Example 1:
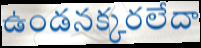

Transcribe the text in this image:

ఉండనక్కరలేదా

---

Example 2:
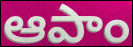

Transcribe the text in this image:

ఆపాం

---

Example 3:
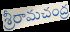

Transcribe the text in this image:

శ్రీరామచంద్ర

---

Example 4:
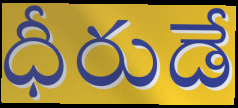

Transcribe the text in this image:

ధీరుడే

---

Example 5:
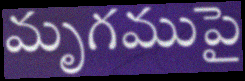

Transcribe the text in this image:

మృగముపై